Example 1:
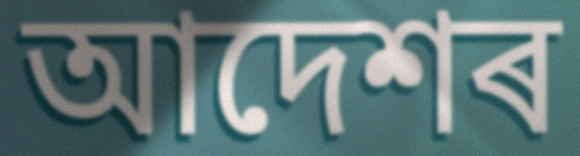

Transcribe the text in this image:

আদেশৰ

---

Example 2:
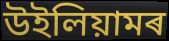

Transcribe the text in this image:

উইলিয়ামৰ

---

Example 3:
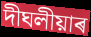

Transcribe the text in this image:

দীঘলীয়াৰ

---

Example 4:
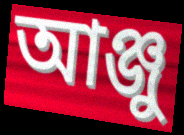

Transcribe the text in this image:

আঞ্জু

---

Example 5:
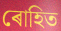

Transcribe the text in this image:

ৰোহিত